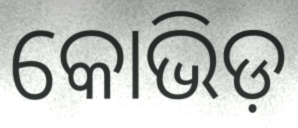
କୋଭିଡ଼